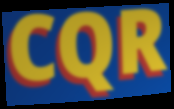
CQR